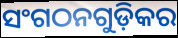
ସଂଗଠନଗୁଡ଼ିକର